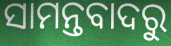
ସାମନ୍ତବାଦରୁ